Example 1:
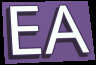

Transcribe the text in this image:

EA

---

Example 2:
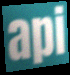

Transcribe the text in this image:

api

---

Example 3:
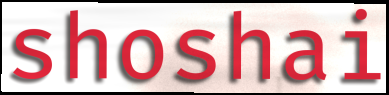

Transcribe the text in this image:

shoshai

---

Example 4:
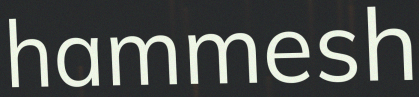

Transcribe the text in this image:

hammesh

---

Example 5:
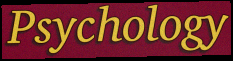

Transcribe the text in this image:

Psychology